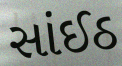
સાંઈઠ